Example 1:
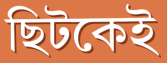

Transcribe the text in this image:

ছিটকেই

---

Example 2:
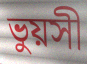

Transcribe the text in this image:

ভুয়সী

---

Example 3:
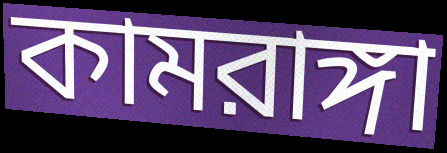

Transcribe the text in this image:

কামরাঙ্গা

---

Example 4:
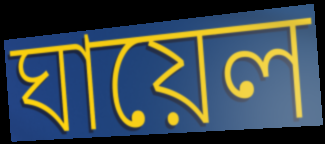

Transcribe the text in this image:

ঘায়েল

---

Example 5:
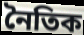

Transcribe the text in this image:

নৈতিক